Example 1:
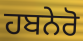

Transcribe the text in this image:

ਹਬਨੇਰੋ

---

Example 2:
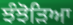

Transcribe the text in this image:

ਝੰਝੋੜਿਆ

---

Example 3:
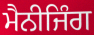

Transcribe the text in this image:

ਮੈਨੀਜਿੰਗ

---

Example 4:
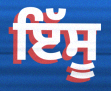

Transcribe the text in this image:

ਇੱਸੂ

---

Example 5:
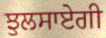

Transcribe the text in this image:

ਝੁਲਸਾਏਗੀ